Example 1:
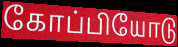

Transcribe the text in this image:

கோப்பியோடு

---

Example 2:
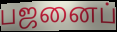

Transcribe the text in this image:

பஜனைப்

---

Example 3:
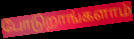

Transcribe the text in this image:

போடுறாங்களாம்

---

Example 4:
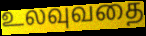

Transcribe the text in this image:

உலவுவதை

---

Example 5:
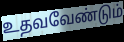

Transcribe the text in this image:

உதவவேண்டும்